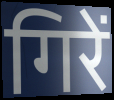
गिरें